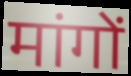
मांगों